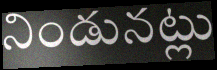
నిండునట్లు